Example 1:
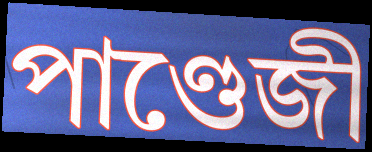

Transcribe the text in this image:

পাণ্ডেজী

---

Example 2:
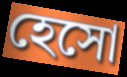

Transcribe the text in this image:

হেসো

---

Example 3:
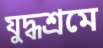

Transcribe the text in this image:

যুদ্ধশ্রমে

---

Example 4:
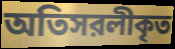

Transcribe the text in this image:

অতিসরলীকৃত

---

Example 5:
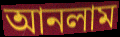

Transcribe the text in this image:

আনলাম